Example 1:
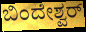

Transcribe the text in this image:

ಬಿಂದೇಶ್ವರ್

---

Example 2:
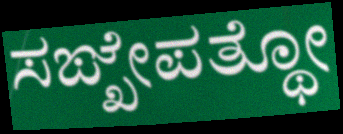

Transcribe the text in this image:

ಸಙ್ಖೇಪತ್ಥೋ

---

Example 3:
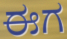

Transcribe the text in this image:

ಈಗ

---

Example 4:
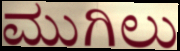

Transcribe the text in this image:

ಮುಗಿಲು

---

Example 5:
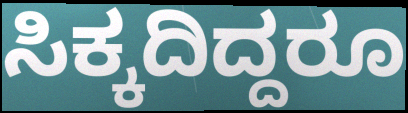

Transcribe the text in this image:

ಸಿಕ್ಕದಿದ್ದರೂ